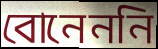
বোনেননি